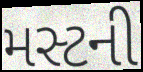
મસ્ટની